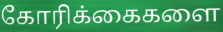
கோரிக்கைகளை